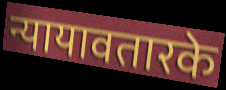
न्यायावतारके